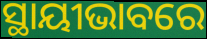
ସ୍ଥାୟୀଭାବରେ